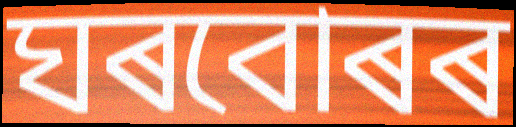
ঘৰবোৰৰ